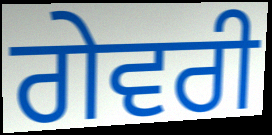
ਗੇਵਰੀ